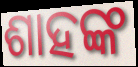
ଶାହଙ୍କ